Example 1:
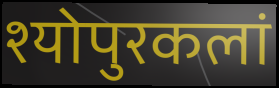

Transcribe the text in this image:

श्योपुरकलां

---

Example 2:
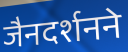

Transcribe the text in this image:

जैनदर्शनने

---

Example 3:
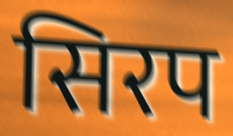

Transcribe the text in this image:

सिरप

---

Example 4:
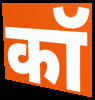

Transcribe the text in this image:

कॉ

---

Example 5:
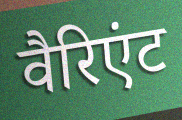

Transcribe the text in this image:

वैरिएंट